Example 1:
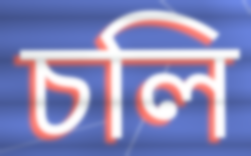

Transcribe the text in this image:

চলি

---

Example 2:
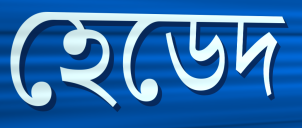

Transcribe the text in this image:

হেডেদ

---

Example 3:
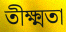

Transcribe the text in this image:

তীক্ষ্মতা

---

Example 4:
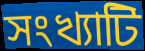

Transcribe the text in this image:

সংখ্যাটি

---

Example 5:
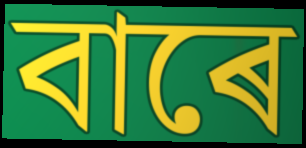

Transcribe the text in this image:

বাৰে